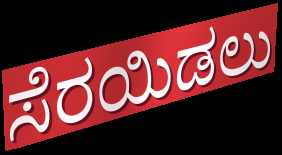
ಸೆರಯಿಡಲು